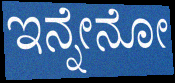
ಇನ್ನೇನೋ